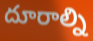
దూరాల్ని